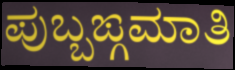
ಪುಬ್ಬಙ್ಗಮಾತಿ